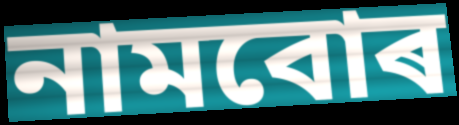
নামবোৰ